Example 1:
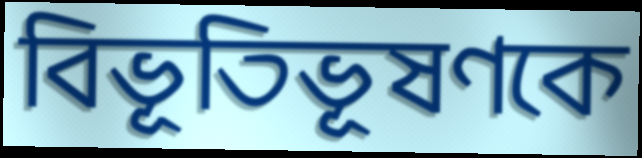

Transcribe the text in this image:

বিভূতিভূষণকে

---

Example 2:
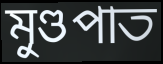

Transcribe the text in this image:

মুণ্ডপাত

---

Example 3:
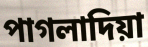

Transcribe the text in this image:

পাগলাদিয়া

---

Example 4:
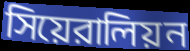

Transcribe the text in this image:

সিয়েরালিয়ন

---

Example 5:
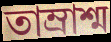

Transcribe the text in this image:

তাম্রাশ্ম